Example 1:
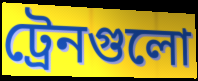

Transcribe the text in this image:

ট্রেনগুলো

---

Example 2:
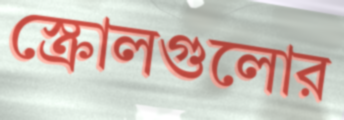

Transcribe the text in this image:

স্ক্রোলগুলোর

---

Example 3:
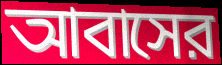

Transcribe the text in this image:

আবাসের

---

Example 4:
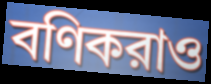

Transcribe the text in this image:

বণিকরাও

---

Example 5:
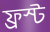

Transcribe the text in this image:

ফ্রস্ট